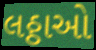
લઠ્ઠાઓ